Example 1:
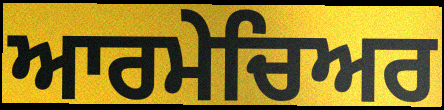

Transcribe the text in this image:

ਆਰਮੇਚਿਅਰ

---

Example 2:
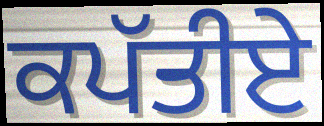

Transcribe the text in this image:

ਕਪੱਤੀਏ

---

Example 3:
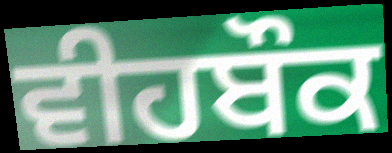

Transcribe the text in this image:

ਵੀਹਬੌਕ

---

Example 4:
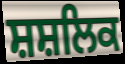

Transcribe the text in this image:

ਸ਼ਸ਼ਲਿਕ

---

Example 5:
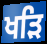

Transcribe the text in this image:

ਖੜਿ